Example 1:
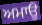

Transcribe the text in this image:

ਅਮਾਉ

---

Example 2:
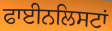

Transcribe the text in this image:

ਫਾਈਨਲਿਸਟਾਂ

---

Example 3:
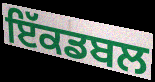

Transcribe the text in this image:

ਇੱਕਡਬਲ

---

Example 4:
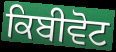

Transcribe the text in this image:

ਕਿਬੀਵੋਟ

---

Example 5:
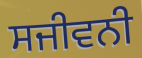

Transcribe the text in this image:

ਸਜੀਵਨੀ